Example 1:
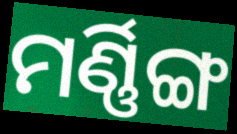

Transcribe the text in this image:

ମର୍ଣ୍ଣିଙ୍ଗ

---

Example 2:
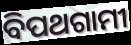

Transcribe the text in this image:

ବିପଥଗାମୀ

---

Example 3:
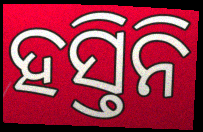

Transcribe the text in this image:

ହସ୍ତିନି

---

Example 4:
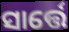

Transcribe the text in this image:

ସାର୍ତ୍ତେ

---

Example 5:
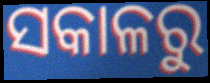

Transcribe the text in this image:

ସକାଳରୁ